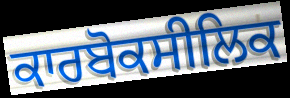
ਕਾਰਬੋਕਸੀਲਿਕ